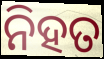
ନିହତ